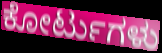
ಕೋರ್ಟುಗಳು